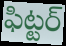
ఫిట్టర్